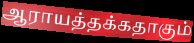
ஆராயத்தக்கதாகும்